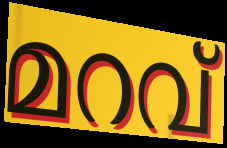
മറവ്